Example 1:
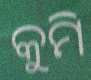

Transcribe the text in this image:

କୁମି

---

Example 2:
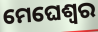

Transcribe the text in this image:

ମେଘେଶ୍ୱର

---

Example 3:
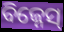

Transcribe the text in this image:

ବିଜ୍ନେସ୍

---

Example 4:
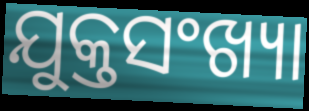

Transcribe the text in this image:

ଯୁକ୍ତସଂଖ୍ୟା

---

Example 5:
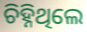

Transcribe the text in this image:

ଚିହ୍ନିଥିଲେ